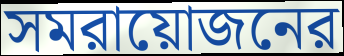
সমরায়োজনের